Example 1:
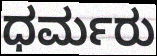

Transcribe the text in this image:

ಧರ್ಮರು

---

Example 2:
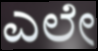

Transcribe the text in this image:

ಎಲೇ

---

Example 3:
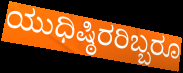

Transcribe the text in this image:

ಯುಧಿಷ್ಠಿರರಿಬ್ಬರೂ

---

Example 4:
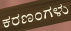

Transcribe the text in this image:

ಕರಣಂಗಳು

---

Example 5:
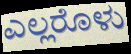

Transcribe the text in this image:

ಎಲ್ಲರೊಳು